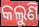
କଲୁଣି